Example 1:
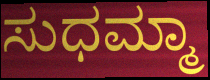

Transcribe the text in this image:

ಸುಧಮ್ಮಾ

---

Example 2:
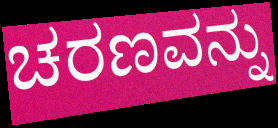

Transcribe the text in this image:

ಚರಣವನ್ನು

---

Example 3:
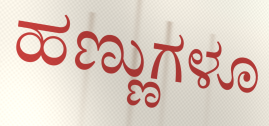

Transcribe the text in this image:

ಹಣ್ಣುಗಳೂ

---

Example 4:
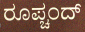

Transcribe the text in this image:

ರೂಪ್ಚಂದ್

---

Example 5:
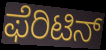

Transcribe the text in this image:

ಫೆರಿಟಿನ್